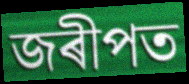
জৰীপত